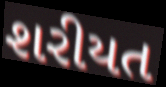
શરીયત